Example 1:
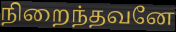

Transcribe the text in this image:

நிறைந்தவனே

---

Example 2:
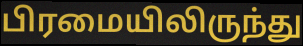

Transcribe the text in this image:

பிரமையிலிருந்து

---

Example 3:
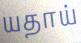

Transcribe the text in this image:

யதாய்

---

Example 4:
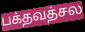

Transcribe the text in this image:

பக்தவத்சல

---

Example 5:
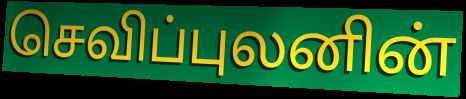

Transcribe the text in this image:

செவிப்புலனின்